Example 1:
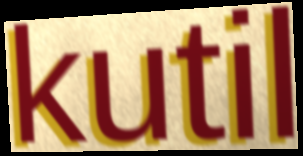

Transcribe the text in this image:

kutil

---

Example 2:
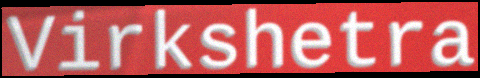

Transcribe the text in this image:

Virkshetra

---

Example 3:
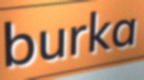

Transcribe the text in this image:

burka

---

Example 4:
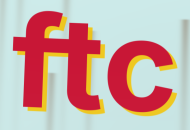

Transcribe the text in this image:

ftc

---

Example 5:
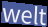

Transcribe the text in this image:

welt